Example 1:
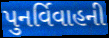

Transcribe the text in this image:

પુનર્વિવાહની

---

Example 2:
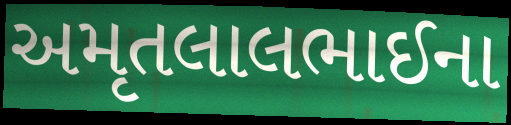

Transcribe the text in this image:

અમૃતલાલભાઈના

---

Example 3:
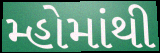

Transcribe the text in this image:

મ્હોમાંથી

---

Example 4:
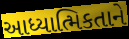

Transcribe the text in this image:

આધ્યાત્મિકતાને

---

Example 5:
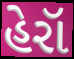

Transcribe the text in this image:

હેરૉ